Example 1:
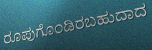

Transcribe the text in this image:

ರೂಪುಗೊಂಡಿರಬಹುದಾದ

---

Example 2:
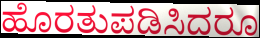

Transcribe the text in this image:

ಹೊರತುಪಡಿಸಿದರೂ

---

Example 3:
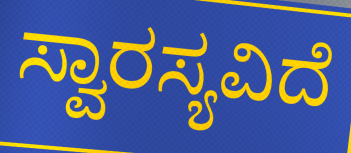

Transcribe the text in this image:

ಸ್ವಾರಸ್ಯವಿದೆ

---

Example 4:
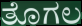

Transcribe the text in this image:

ತೊಗಲ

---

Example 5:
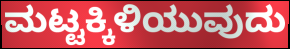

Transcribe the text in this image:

ಮಟ್ಟಕ್ಕಿಳಿಯುವುದು